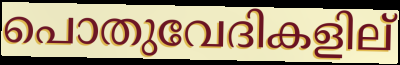
പൊതുവേദികളില്